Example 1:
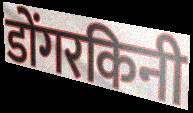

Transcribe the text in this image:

डोंगरकिनी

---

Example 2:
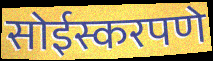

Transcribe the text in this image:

सोईस्करपणे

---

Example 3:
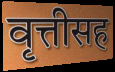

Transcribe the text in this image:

वृत्तीसह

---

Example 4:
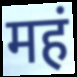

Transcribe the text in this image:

महं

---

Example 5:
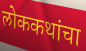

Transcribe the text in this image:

लोककथांचा